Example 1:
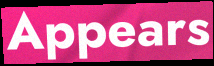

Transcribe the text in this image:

Appears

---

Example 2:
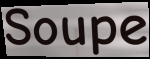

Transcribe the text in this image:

Soupe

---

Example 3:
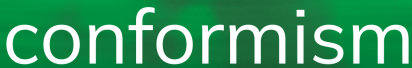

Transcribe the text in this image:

conformism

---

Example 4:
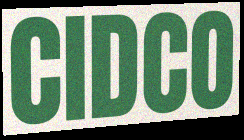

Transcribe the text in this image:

CIDCO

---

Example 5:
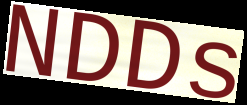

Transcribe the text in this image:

NDDs